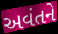
અવંતને